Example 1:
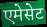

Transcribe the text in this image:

एमेसेट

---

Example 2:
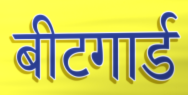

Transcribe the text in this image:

बीटगार्ड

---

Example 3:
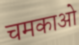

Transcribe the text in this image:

चमकाओ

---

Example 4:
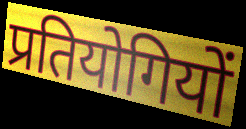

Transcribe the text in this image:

प्रतियोगियों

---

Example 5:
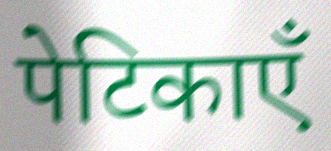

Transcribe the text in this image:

पेटिकाएँ